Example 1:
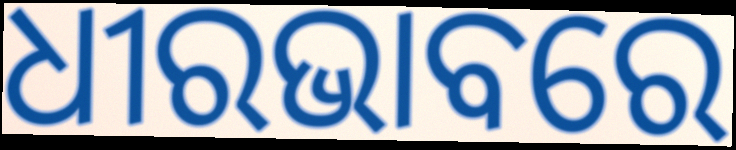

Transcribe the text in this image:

ଧୀରଭାବରେ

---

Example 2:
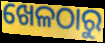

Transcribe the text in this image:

ଖେଳଠାରୁ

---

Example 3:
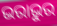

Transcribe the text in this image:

ଭରାଭୁର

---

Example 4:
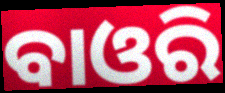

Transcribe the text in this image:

ବାଓରି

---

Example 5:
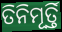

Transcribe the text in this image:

ତିନିମୂର୍ତ୍ତି